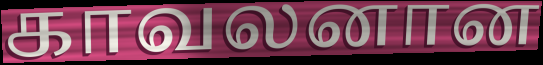
காவலனான